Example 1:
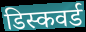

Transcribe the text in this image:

डिस्कवर्ड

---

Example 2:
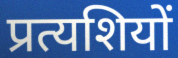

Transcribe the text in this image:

प्रत्यशियों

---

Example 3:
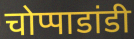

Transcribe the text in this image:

चोप्पाडांडी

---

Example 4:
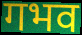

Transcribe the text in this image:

गभव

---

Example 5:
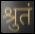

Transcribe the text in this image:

श्रुतं